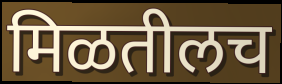
मिळतीलच